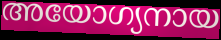
അയോഗ്യനായ